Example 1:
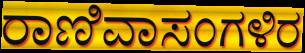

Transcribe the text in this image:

ರಾಣಿವಾಸಂಗಳಿರ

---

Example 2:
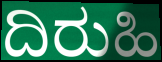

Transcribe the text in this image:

ದಿರುಹಿ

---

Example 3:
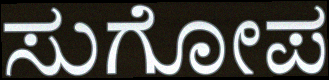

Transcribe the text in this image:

ಸುಗೋಪ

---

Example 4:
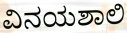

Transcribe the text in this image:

ವಿನಯಶಾಲಿ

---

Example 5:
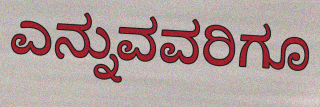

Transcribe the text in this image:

ಎನ್ನುವವರಿಗೂ